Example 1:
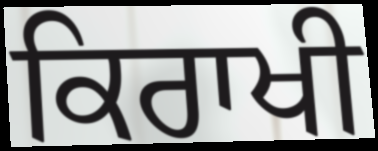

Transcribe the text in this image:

ਕਿਰਾਖੀ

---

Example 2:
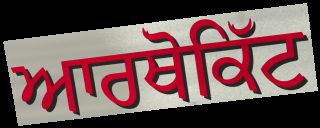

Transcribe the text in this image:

ਆਰਥੋਕਿੱਟ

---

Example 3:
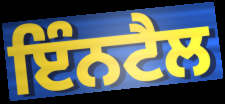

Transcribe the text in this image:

ਇੰਨਟੈਲ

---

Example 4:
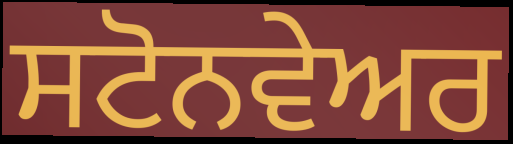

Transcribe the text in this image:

ਸਟੋਨਵੇਅਰ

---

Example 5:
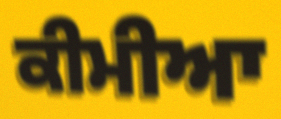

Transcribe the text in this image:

ਕੀਮੀਆ